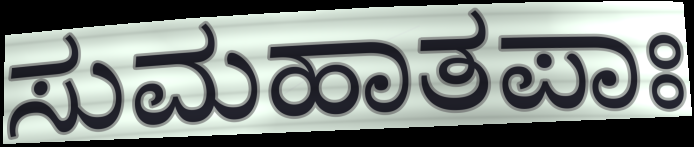
ಸುಮಹಾತಪಾಃ